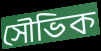
সৌভিক